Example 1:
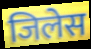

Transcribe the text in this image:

जिलेस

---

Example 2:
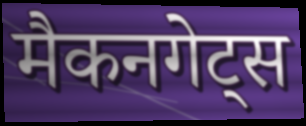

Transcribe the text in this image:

मैकनगेट्स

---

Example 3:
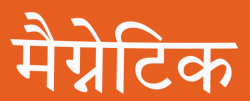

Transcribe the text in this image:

मैग्नेटिक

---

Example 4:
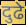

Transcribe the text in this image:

दुढे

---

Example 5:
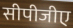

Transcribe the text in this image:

सीपीजीए